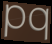
pq